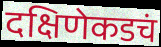
दक्षिणेकडचं